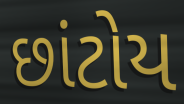
છાંટોય